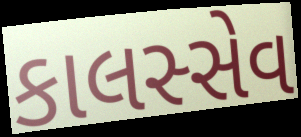
કાલસ્સેવ